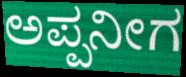
ಅಪ್ಪನೀಗ